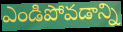
ఎండిపోవడాన్ని